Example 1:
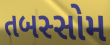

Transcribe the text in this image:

તબસ્સોમ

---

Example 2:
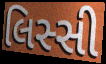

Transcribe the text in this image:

લિસ્સી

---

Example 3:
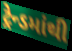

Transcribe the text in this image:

ટ્રેન્ડમાંથી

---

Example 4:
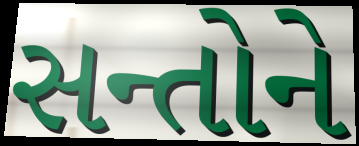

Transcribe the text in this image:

સન્તોને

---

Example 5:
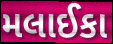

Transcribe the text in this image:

મલાઈકા